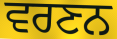
ਵਰਣਨ